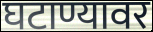
घटाण्यावर